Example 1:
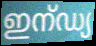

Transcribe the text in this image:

ഇന്ഡ്യ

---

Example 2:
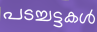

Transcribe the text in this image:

പടച്ചട്ടകൾ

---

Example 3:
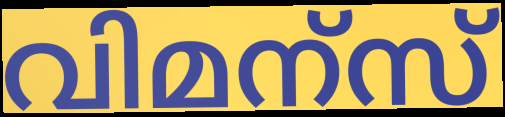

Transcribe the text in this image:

വിമന്സ്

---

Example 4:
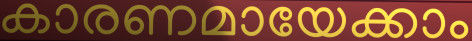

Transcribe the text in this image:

കാരണമായേക്കാം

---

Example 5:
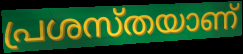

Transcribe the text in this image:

പ്രശസ്തയാണ്